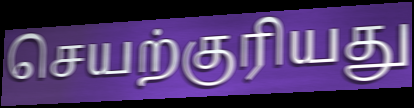
செயற்குரியது